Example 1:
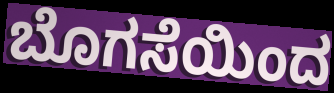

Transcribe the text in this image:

ಬೊಗಸೆಯಿಂದ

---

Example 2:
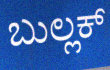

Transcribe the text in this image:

ಬುಲ್ಲಕ್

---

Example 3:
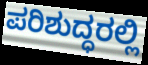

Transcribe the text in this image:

ಪರಿಶುದ್ಧರಲ್ಲಿ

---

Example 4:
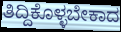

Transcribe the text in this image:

ತಿದ್ದಿಕೊಳ್ಳಬೇಕಾದ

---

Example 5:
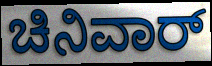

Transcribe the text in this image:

ಚಿನಿವಾರ್